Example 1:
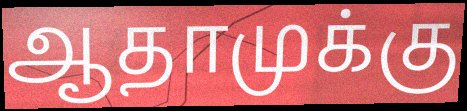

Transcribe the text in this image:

ஆதாமுக்கு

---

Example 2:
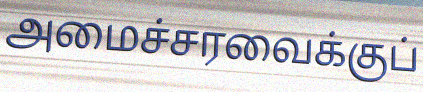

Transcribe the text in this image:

அமைச்சரவைக்குப்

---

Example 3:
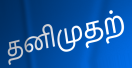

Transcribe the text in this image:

தனிமுதற்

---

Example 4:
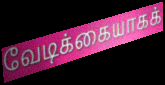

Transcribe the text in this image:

வேடிக்கையாகக்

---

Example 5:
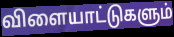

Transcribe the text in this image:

விளையாட்டுகளும்